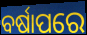
ବର୍ଷାପରେ